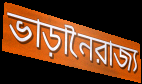
ভাড়ানৈরাজ্য